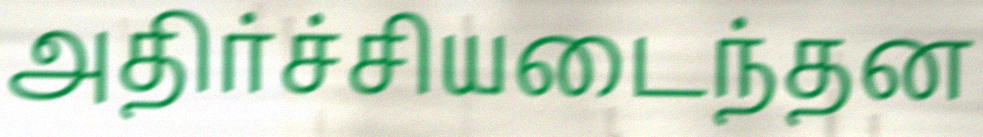
அதிர்ச்சியடைந்தன